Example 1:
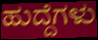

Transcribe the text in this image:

ಹುದ್ದೆಗಳು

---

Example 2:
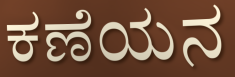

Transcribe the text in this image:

ಕಣೆಯನ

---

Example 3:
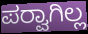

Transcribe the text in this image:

ಪರ‍್ವಾಗಿಲ್ಲ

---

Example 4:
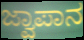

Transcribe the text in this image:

ಜ್ವಾಪಾನ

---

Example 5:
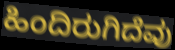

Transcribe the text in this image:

ಹಿಂದಿರುಗಿದೆವು